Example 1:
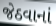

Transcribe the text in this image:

જેઠવાનાં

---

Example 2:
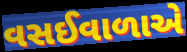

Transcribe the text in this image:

વસઈવાળાએ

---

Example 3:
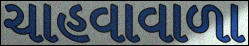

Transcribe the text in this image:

ચાહવાવાળા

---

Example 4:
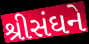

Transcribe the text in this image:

શ્રીસંઘને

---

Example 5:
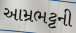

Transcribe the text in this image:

આમ્રભટ્ટની